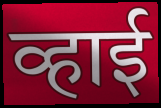
व्हाई